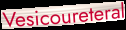
Vesicoureteral